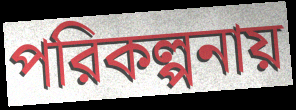
পরিকল্পনায়